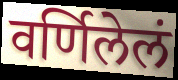
वर्णिलेलं